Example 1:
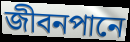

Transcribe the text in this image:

জীবনপানে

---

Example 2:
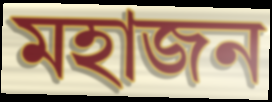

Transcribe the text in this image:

মহাজন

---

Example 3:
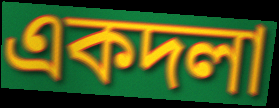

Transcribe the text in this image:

একদলা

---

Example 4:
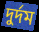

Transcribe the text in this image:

দুর্দম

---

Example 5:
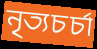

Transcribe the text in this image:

নৃত্যচর্চা